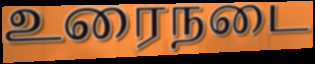
உரைநடை